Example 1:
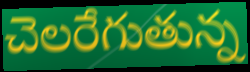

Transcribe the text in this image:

చెలరేగుతున్న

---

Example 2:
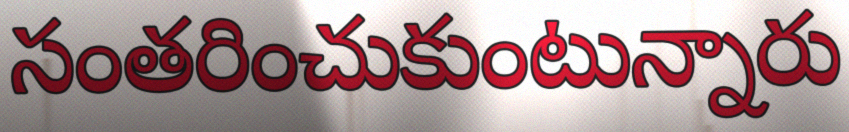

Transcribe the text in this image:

సంతరించుకుంటున్నారు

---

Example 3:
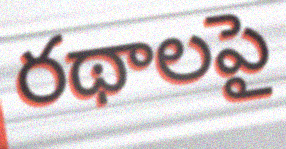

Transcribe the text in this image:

రథాలపై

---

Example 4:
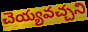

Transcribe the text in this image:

చెయ్యవచ్చని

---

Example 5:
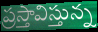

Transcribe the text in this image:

ప్రస్తావిస్తున్న